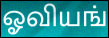
ஓவியங்